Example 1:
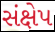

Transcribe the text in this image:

સંક્ષેપ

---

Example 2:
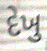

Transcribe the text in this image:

દેખુ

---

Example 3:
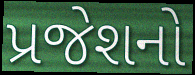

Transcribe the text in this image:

પ્રજેશનો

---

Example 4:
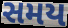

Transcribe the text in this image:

સમય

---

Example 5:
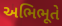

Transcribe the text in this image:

અભિભૂતે